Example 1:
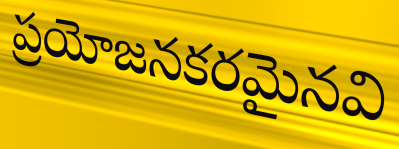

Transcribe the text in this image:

ప్రయోజనకరమైనవి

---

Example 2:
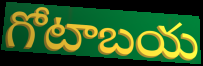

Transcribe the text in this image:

గోటాబయ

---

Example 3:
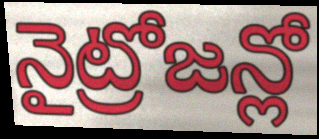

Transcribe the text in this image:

నైట్రోజన్లో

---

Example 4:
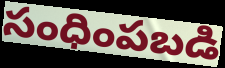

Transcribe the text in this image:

సంధింపబడి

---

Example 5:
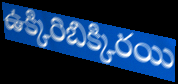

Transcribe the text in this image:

ఉక్కిరిబిక్కిరయి